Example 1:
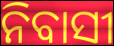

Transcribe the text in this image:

ନିବାସୀ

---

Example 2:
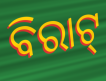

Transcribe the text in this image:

ବିରାଟ୍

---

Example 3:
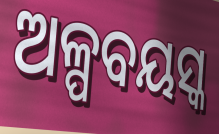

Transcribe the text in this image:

ଅଳ୍ପବୟସ୍କ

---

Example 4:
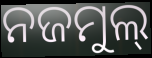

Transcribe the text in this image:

ନଜମୁଲ୍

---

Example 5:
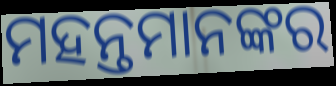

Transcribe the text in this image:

ମହନ୍ତମାନଙ୍କର